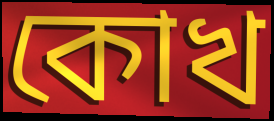
কোখ